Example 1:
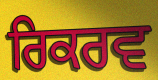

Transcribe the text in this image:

ਰਿਕਰਵ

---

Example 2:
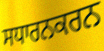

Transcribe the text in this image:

ਸਧਾਰਨਕਰਨ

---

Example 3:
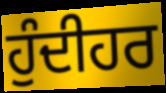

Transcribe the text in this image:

ਹੁੰਦੀਹਰ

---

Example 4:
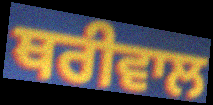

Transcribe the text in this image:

ਥਰੀਵਾਲ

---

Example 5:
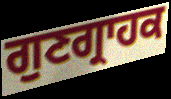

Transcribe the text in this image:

ਗੁਣਗ੍ਰਾਹਕ